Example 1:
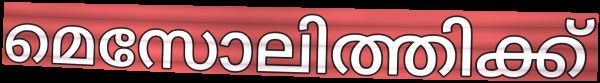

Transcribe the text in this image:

മെസോലിത്തിക്ക്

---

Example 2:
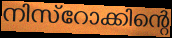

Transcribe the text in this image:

നിസ്റോക്കിന്റെ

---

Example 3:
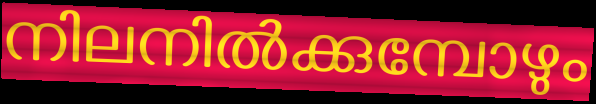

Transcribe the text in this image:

നിലനിൽക്കുമ്പോഴും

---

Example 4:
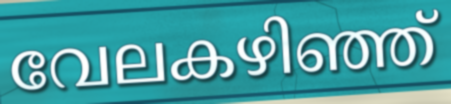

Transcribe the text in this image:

വേലകഴിഞ്ഞ്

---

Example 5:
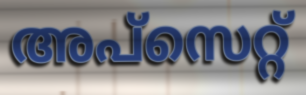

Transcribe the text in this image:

അപ്സെറ്റ്